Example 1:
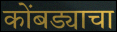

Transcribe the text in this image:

कोंबड्याचा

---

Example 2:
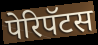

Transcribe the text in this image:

पेरिपॅटस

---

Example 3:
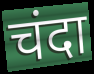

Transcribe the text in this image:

चंदा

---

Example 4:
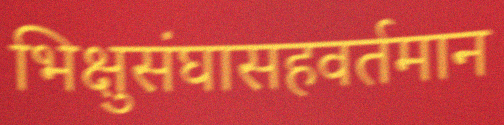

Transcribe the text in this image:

भिक्षुसंघासहवर्तमान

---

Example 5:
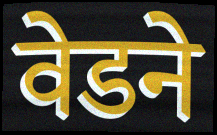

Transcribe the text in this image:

वेडने